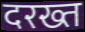
दरख्त